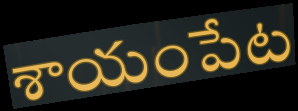
శాయంపేట